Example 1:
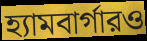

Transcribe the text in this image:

হ্যামবার্গারও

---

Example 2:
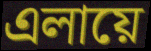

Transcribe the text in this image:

এলায়ে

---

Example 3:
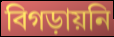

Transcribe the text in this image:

বিগড়ায়নি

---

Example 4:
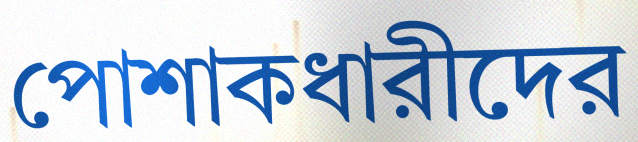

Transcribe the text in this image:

পোশাকধারীদের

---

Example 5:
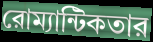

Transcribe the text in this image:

রোম্যান্টিকতার